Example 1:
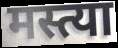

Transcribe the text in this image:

मस्त्या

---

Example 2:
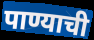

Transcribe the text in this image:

पाण्याची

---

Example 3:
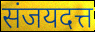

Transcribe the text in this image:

संजयदत्त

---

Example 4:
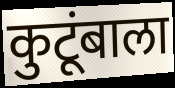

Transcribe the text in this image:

कुटूंबाला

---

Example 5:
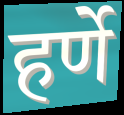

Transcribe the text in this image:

हर्णे